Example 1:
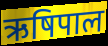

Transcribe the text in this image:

ऋषिपाल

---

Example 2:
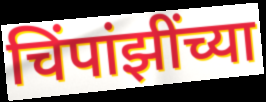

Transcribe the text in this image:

चिंपांझींच्या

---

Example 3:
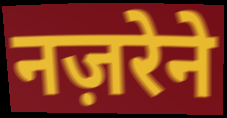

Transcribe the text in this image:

नज़रेने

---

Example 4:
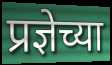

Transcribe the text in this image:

प्रज्ञेच्या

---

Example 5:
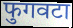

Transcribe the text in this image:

फुगवटा